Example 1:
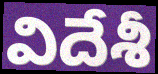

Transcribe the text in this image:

విదేశీ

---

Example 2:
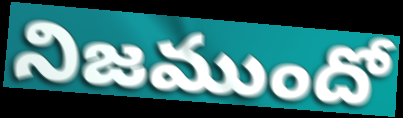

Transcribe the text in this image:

నిజముందో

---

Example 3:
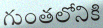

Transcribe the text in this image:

గుంతలోనికి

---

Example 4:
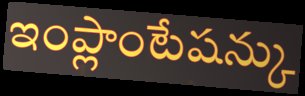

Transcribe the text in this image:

ఇంప్లాంటేషన్కు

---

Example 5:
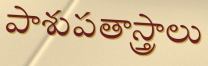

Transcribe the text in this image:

పాశుపతాస్త్రాలు